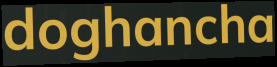
doghancha